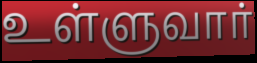
உள்ளுவார்